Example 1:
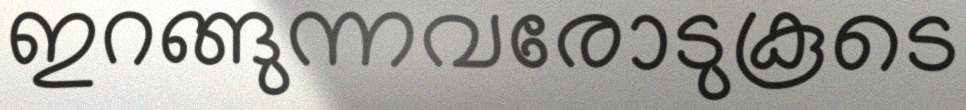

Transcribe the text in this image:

ഇറങ്ങുന്നവരോടുകൂടെ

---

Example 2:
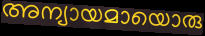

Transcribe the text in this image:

അന്യായമായൊരു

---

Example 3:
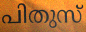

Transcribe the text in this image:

പിതുസ്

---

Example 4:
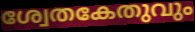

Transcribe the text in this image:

ശ്വേതകേതുവും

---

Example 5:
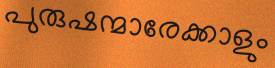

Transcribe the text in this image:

പുരുഷന്മാരേക്കാളും